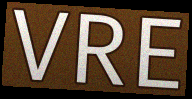
VRE